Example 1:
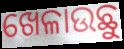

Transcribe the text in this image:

ଖେଳାଉଛୁ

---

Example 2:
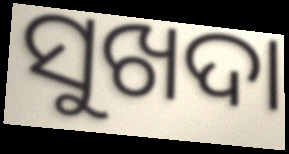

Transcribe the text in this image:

ସୁଖଦା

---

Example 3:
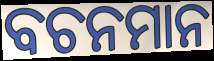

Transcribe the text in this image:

ବଚନମାନ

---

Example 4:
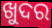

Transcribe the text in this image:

ଖୁଦର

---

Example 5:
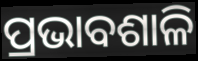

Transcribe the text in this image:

ପ୍ରଭାବଶାଳି